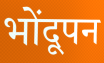
भोंदूपन